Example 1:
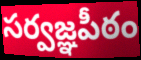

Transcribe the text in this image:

సర్వజ్ఞపీఠం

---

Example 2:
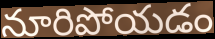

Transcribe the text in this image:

నూరిపోయడం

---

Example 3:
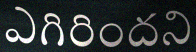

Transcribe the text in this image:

ఎగిరిందని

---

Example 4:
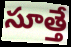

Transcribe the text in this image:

సూత్తే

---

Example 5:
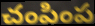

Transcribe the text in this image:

చంపింప